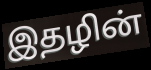
இதழின்